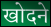
खोदने